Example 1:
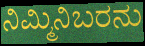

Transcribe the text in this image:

ನಿಮ್ಮಿನಿಬರನು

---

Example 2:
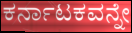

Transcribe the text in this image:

ಕರ್ನಾಟಕವನ್ನೇ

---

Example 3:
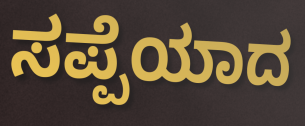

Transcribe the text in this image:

ಸಪ್ಪೆಯಾದ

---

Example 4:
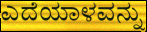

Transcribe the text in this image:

ಎದೆಯಾಳವನ್ನು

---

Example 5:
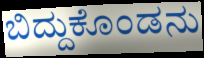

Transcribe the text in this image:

ಬಿದ್ದುಕೊಂಡನು